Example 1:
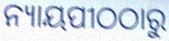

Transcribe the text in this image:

ନ୍ୟାୟପୀଠଠାରୁ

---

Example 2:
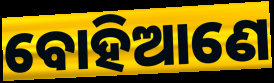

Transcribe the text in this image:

ବୋହିଆଣେ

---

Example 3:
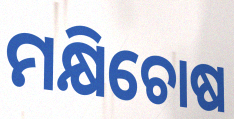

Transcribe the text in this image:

ମକ୍ଷିଚୋଷ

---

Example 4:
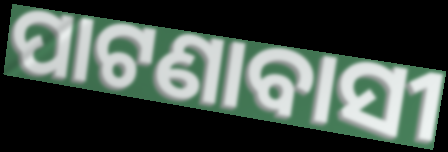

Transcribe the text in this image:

ପାଟଣାବାସୀ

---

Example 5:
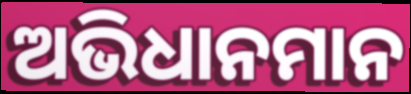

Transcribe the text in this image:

ଅଭିଧାନମାନ